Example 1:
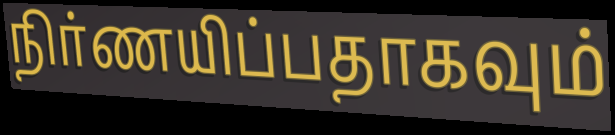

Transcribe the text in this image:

நிர்ணயிப்பதாகவும்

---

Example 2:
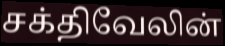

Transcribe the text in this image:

சக்திவேலின்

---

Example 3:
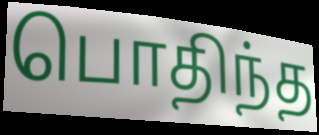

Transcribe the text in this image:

பொதிந்த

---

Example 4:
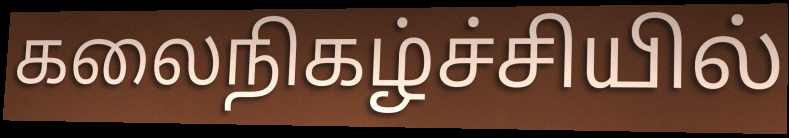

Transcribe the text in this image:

கலைநிகழ்ச்சியில்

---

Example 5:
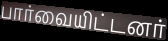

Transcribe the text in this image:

பார்வையிட்டனர்